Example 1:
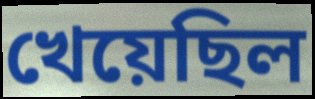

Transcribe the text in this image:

খেয়েছিল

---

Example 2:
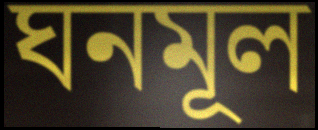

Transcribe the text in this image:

ঘনমূল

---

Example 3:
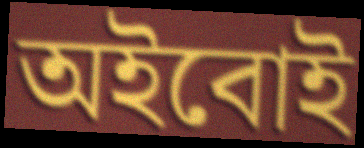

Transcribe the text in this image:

অইবোই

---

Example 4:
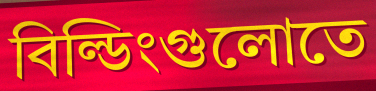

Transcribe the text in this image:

বিল্ডিংগুলোতে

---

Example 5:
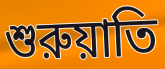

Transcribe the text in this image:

শুরুয়াতি